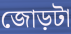
জোড়টা